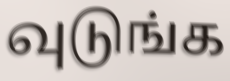
வுடுங்க